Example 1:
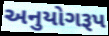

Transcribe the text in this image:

અનુયોગરૂપ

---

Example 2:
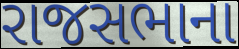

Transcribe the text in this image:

રાજસભાના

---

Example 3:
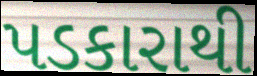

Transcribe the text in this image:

પડકારાથી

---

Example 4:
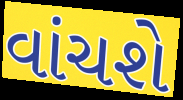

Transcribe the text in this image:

વાંચશે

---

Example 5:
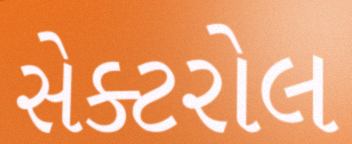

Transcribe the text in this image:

સેક્ટરોલ